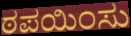
ಠಪಯಿಂಸು